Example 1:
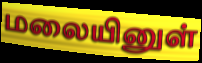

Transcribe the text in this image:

மலையினுள்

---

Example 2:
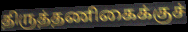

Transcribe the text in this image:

திருத்தணிகைக்குச்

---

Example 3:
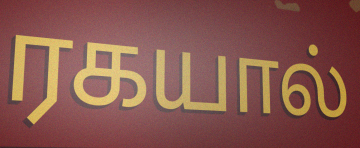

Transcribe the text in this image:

ரகயால்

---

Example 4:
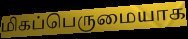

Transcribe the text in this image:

மிகப்பெருமையாக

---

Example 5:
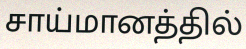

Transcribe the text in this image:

சாய்மானத்தில்